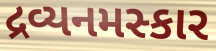
દ્રવ્યનમસ્કાર